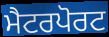
ਮੈਟਰਪੋਰਟ